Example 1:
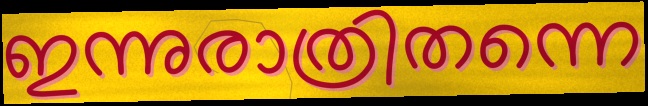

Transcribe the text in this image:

ഇന്നുരാത്രിതന്നെ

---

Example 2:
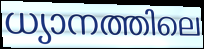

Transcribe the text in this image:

ധ്യാനത്തിലെ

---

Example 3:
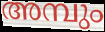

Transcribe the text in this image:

അമ്പും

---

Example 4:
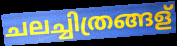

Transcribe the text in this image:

ചലച്ചിത്രങ്ങള്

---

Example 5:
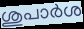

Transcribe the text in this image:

ശുപാർശ